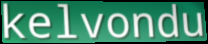
kelvondu